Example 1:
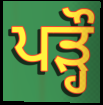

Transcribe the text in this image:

ਪੜ੍ਹੌ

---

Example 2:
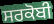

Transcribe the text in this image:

ਸਰਕੋਬੀ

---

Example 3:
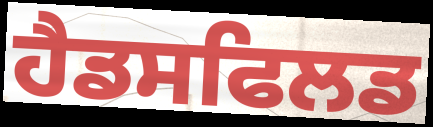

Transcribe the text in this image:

ਹੈਡਸਫਿਲਡ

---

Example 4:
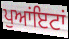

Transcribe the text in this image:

ਪੁਆਂਇਟਾਂ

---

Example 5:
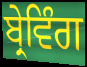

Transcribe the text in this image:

ਬ੍ਰੇਵਿੰਗ